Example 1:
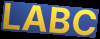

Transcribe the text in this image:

LABC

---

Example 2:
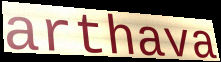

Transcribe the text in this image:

arthava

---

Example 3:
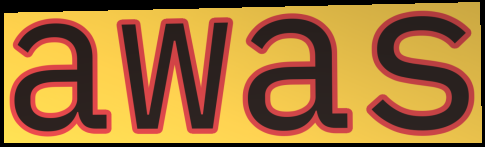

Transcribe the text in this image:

awas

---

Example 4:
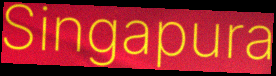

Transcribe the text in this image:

Singapura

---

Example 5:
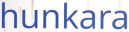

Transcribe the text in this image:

hunkara